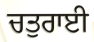
ਚਤੁਰਾਈ